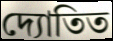
দ্যোতিত